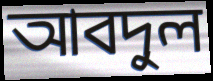
আবদুল